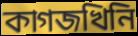
কাগজখিনি